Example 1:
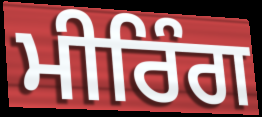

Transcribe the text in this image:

ਮੀਰਿੰਗ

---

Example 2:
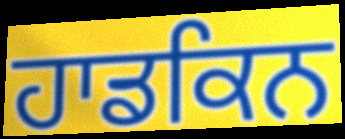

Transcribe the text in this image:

ਹਾਡਕਿਨ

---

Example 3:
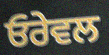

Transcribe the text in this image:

ਓਰੇਵਲ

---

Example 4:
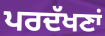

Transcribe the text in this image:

ਪਰਦੱਖਣਾਂ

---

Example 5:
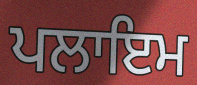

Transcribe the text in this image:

ਪਲਾਇਮ